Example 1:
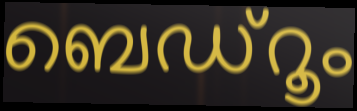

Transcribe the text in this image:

ബെഡ്റൂം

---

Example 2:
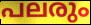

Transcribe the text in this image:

പലരും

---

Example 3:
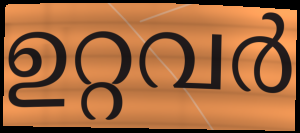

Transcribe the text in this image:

ഉറ്റവർ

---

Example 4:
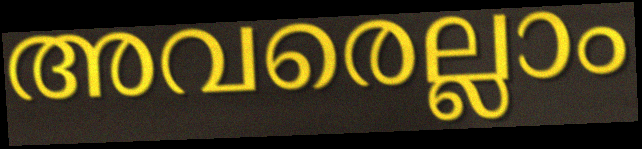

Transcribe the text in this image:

അവരെല്ലാം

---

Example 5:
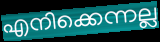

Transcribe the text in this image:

എനിക്കെന്നല്ല